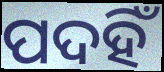
ପଦହିଁ